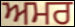
ਅਮਰ